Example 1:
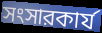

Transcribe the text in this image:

সংসারকার্য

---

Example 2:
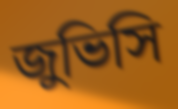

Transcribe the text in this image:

জুভিসি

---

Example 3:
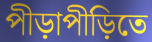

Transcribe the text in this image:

পীড়াপীড়িতে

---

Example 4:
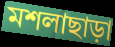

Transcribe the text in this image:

মশলাছাড়া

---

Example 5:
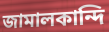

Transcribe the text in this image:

জামালকান্দি